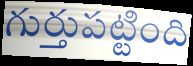
గుర్తుపట్టింది